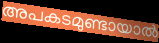
അപകടമുണ്ടായാൽ